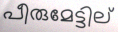
പീരുമേട്ടില്